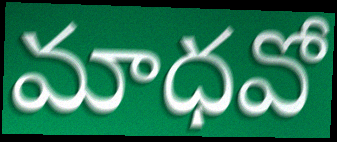
మాధవో